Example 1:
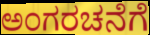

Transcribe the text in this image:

ಅಂಗರಚನೆಗೆ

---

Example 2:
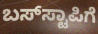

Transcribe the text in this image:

ಬಸ್‌ಸ್ಟಾಪಿಗೆ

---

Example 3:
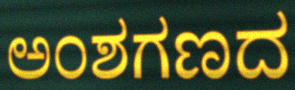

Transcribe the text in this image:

ಅಂಶಗಣದ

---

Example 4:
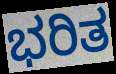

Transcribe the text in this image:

ಭರಿತ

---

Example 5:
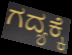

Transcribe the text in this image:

ಗದ್ಯಕ್ಕೆ